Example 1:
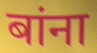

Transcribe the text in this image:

बांना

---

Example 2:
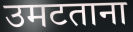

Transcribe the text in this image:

उमटताना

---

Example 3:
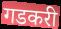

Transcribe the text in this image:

गडकरी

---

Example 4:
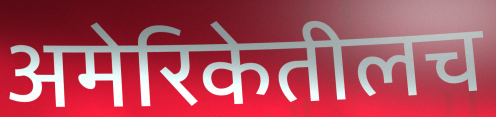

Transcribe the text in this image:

अमेरिकेतीलच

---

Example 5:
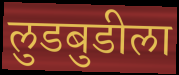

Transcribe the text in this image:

लुडबुडीला